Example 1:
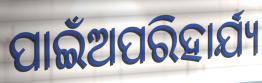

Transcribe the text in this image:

ପାଇଁଅପରିହାର୍ଯ୍ୟ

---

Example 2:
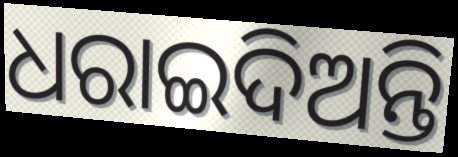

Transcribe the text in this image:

ଧରାଇଦିଅନ୍ତି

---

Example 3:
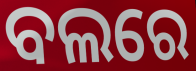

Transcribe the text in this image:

ବଲରେ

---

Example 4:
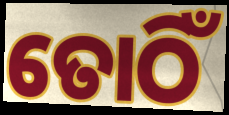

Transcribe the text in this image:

ତୋଠିଁ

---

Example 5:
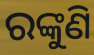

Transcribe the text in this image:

ରଙ୍କୁଣି